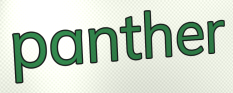
panther